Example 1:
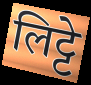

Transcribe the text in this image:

लिट्टे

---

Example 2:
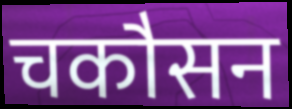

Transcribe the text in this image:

चकौसन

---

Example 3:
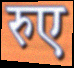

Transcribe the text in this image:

रुए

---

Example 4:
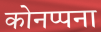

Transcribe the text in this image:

कोनप्पना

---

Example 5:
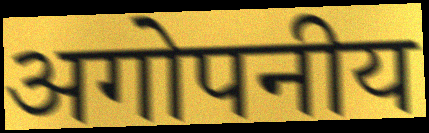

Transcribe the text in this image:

अगोपनीय